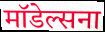
मॉडेल्सना